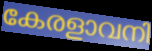
കേരളാവനി